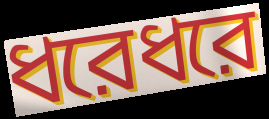
ধরেধরে